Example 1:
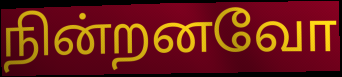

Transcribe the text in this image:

நின்றனவோ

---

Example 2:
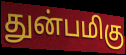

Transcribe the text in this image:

துன்பமிகு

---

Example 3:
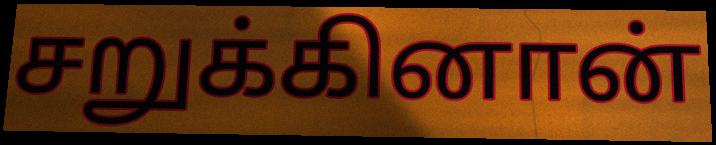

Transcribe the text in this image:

சறுக்கினான்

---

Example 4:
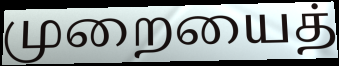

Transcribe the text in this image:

முறையைத்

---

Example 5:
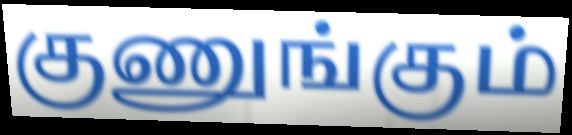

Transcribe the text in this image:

குணுங்கும்